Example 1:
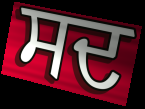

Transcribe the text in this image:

ਸਦ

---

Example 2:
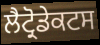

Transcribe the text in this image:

ਲੈਟ੍ਰੋਡੇਕਟਸ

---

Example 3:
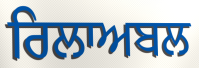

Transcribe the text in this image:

ਰਿਲਾਅਬਲ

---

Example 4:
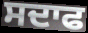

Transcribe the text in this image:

ਸਦਾਫ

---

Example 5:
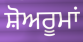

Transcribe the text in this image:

ਸ਼ੋਅਰੂਮਾਂ